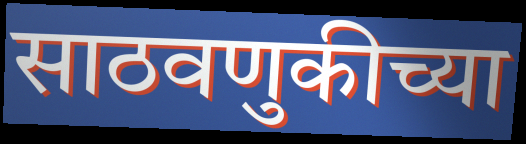
साठवणुकीच्या